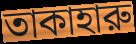
তাকাহারু